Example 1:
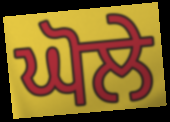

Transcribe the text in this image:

ਘੋਲੇ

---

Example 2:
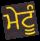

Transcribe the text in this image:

ਮੇਟੂੰ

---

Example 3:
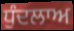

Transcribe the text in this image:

ਧੁੰਦਲਾਅ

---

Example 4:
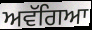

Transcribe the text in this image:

ਅਵੱਗਿਆ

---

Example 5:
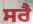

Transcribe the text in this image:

ਸਰੈ